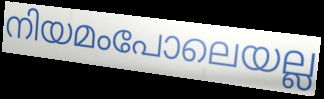
നിയമംപോലെയല്ല